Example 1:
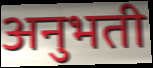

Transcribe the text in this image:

अनुभती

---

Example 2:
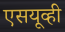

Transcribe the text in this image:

एसयूव्ही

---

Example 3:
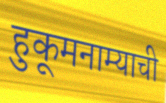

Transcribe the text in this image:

हुकूमनाम्याची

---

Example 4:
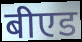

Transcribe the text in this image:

बीएड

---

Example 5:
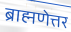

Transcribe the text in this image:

ब्राह्मणेत्तर